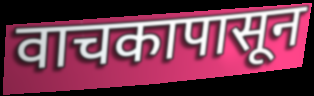
वाचकापासून